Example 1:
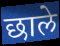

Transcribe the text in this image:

छाले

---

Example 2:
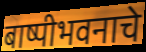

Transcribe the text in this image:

बाष्पीभवनाचे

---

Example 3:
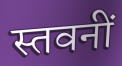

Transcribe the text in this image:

स्तवनीं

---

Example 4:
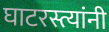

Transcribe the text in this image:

घाटरस्त्यांनी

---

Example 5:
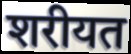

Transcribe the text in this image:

शरीयत